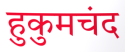
हुकुमचंद